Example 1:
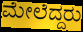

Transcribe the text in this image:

ಮೇಲೆದ್ದರು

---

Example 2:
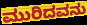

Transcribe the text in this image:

ಮುರಿದವನು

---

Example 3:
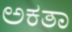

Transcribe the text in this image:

ಅಕತಾ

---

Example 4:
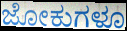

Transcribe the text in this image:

ಜೋಕುಗಳೂ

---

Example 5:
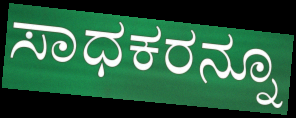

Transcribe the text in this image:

ಸಾಧಕರನ್ನೂ